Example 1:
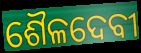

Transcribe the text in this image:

ଶୈଳଦେବୀ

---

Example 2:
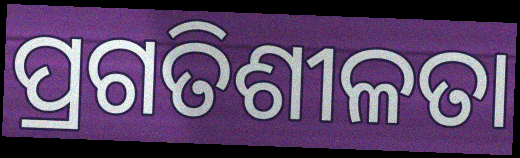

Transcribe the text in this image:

ପ୍ରଗତିଶୀଳତା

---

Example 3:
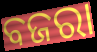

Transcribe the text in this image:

ବଜରା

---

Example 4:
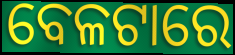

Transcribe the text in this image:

ବେଳଟାରେ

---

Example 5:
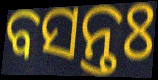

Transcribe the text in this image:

ବସନ୍ତଃ